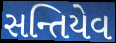
સન્તિયેવ